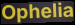
Ophelia